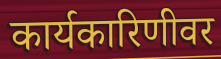
कार्यकारिणीवर